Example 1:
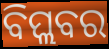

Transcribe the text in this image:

ବିପ୍ଲବର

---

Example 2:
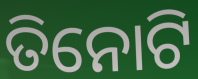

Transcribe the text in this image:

ତିନୋଟି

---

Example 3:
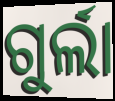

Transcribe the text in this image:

ଗୁର୍ଲା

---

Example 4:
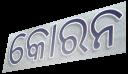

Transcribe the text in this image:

କୋରନ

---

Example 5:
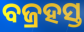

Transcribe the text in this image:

ବଜ୍ରହସ୍ତ